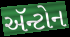
ઍન્ટોન